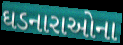
ઘડનારાઓના